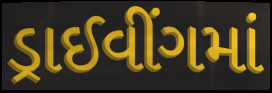
ડ્રાઈવીંગમાં